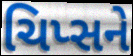
ચિપ્સને